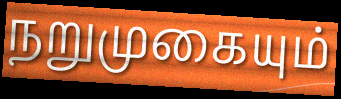
நறுமுகையும்